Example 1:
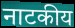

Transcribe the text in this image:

नाटकीय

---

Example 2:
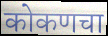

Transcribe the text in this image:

कोकणचा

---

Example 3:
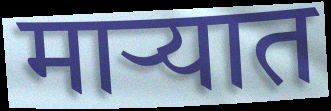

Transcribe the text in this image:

माऱ्यात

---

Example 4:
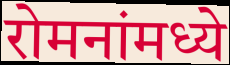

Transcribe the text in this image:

रोमनांमध्ये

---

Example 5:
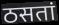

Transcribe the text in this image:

ठसतां